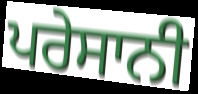
ਪਰੇਸਾਨੀ